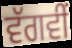
ਵੱਗਵੀਂ